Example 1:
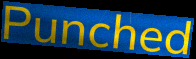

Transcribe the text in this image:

Punched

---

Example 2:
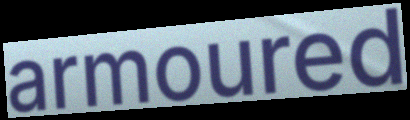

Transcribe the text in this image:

armoured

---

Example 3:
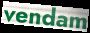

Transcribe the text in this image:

vendam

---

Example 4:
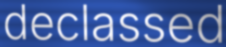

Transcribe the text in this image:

declassed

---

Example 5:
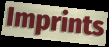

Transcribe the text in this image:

Imprints